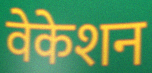
वेकेशन